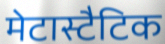
मेटास्टैटिक